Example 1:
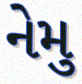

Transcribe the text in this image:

નેમુ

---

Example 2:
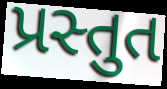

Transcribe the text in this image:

પ્રસ્તુત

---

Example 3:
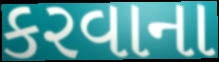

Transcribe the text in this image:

કરવાના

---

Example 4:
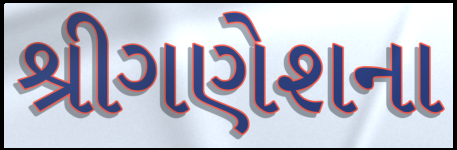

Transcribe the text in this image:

શ્રીગણેશના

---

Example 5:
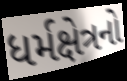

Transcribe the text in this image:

ધર્મક્ષેત્રનો